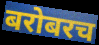
बरोबरच